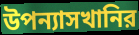
উপন্যাসখানির